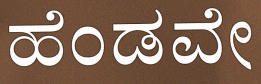
ಹೆಂಡವೇ